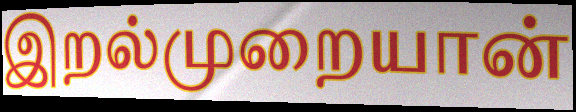
இறல்முறையான்